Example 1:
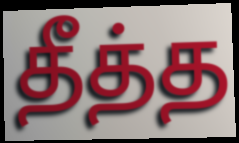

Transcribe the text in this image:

தீத்த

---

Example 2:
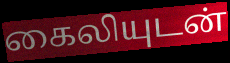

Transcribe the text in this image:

கைலியுடன்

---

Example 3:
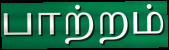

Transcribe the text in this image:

பாற்றம்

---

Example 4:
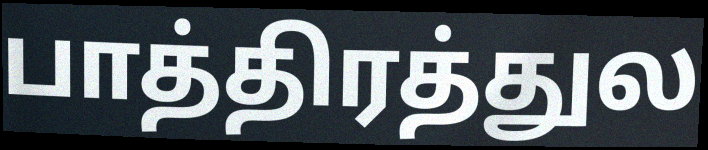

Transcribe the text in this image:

பாத்திரத்துல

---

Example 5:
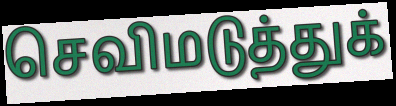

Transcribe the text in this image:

செவிமடுத்துக்